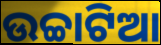
ଉଚ୍ଚାଟିଆ